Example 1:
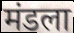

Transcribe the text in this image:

मंडला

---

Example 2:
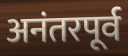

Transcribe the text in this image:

अनंतरपूर्व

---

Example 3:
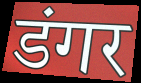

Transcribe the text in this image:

डंगर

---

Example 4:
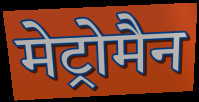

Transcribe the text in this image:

मेट्रोमैन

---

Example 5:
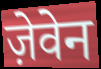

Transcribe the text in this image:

ज़ेवेन